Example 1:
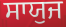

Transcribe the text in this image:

ਸਾਯੁਜ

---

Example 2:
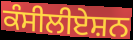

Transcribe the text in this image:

ਕੰਸੀਲੀਏਸ਼ਨ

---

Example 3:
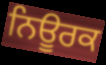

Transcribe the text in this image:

ਨਿਊਰਕ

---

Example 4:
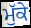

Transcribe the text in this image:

ਮੁੱਕੇ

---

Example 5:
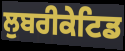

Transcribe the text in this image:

ਲੁਬਰੀਕੇਟਿਡ